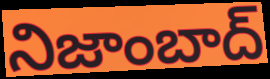
నిజాంబాద్